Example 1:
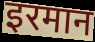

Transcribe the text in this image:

इरमान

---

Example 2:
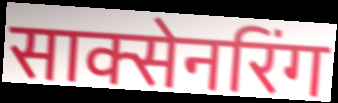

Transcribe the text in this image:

साक्सेनरिंग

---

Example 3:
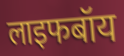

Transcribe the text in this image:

लाइफबॉय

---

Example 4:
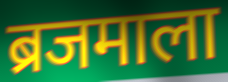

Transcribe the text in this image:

ब्रजमाला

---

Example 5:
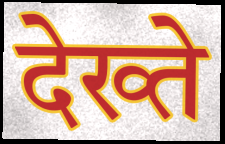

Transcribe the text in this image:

देख्ते